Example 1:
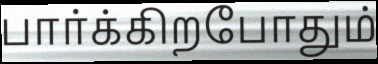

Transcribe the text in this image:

பார்க்கிறபோதும்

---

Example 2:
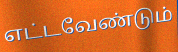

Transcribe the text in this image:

எட்டவேண்டும்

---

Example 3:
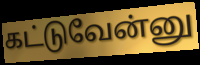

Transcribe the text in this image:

கட்டுவேன்னு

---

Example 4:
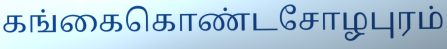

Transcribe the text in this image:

கங்கைகொண்டசோழபுரம்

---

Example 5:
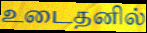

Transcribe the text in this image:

உடைதனில்